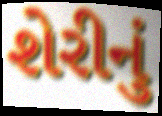
શેરીનું